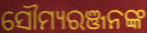
ସୌମ୍ୟରଞ୍ଜନଙ୍କ